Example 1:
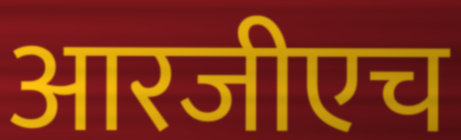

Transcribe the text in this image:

आरजीएच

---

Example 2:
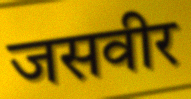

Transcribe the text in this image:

जसवीर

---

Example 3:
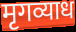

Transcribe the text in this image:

मृगव्याध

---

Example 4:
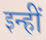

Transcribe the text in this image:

इन्हीं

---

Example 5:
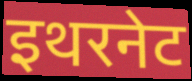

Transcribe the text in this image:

इथरनेट